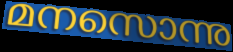
മനസൊന്നു